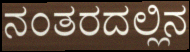
ನಂತರದಲ್ಲಿನ